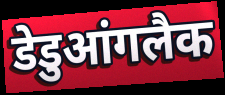
डेडुआंगलैक